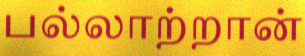
பல்லாற்றான்